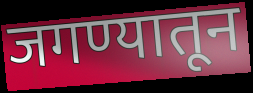
जगण्यातून